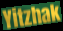
Yitzhak